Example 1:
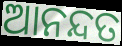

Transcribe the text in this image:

ଆନନ୍ଦତ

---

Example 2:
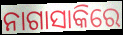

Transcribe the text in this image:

ନାଗାସାକିରେ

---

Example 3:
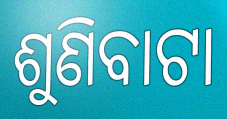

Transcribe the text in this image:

ଶୁଣିବାଟା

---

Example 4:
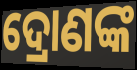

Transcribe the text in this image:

ଦ୍ରୋଣଙ୍କ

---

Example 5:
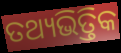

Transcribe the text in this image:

ତଥ୍ୟଭିତ୍ତିକ